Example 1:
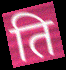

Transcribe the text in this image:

ति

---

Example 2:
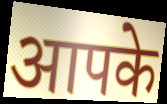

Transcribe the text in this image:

आपके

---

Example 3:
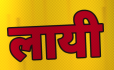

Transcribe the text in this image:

लायी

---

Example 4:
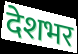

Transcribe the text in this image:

देशभर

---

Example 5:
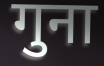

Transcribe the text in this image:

गुना